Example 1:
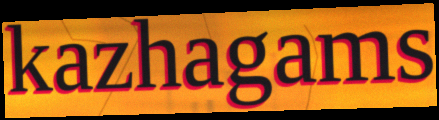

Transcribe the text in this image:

kazhagams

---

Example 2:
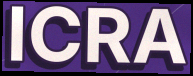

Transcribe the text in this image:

ICRA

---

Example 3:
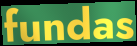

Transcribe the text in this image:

fundas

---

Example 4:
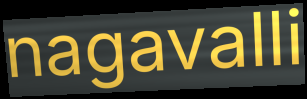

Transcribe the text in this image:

nagavalli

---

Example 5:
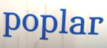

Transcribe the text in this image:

poplar